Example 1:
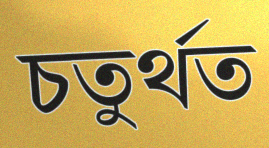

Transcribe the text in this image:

চতুর্থত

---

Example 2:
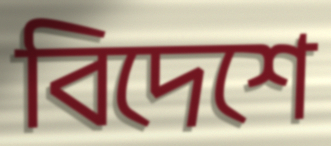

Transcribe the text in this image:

বিদেশে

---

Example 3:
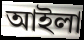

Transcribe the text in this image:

আইলা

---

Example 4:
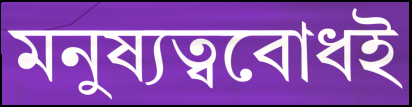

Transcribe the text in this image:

মনুষ্যত্ববোধই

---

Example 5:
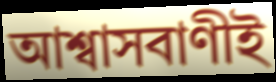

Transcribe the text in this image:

আশ্বাসবাণীই